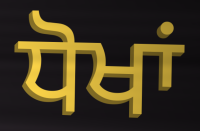
ਧੋਖਾਂ